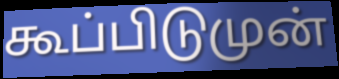
கூப்பிடுமுன்